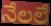
నేలలే